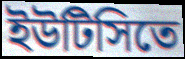
ইউটিসিতে